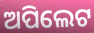
ଅପିଲେଟ